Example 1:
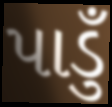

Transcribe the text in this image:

પાડુઁ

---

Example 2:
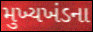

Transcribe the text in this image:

મુખ્યખંડના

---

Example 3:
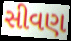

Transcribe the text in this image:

સીવણ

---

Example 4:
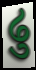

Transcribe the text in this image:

ઢુ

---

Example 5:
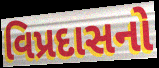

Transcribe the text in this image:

વિપ્રદાસનો